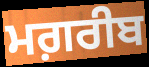
ਮਗ਼ਰੀਬ